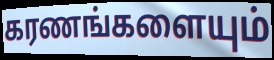
கரணங்களையும்